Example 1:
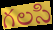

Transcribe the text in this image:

గలసి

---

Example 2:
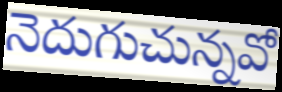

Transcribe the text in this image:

నెదుగుచున్నవో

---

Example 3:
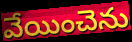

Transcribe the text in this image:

వేయించెను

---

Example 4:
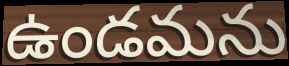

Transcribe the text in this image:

ఉండమను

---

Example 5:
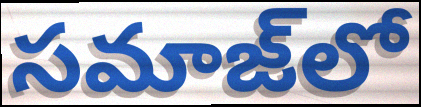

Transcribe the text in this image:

సమాజ్‌లో